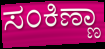
ಸಂಕಿಣ್ಣಾ